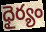
ధైర్యం